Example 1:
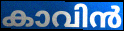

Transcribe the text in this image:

കാവിൻ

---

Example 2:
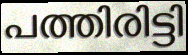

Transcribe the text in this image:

പത്തിരിട്ടി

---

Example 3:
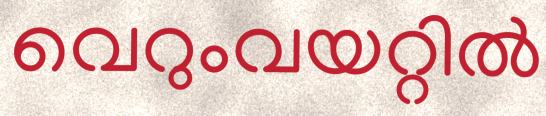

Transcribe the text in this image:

വെറുംവയറ്റിൽ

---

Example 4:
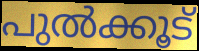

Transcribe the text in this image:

പുൽക്കൂട്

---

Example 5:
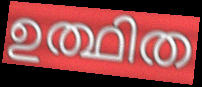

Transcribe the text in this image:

ഉത്ഥിത